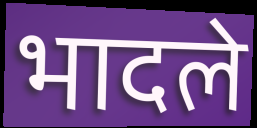
भादले